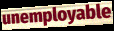
unemployable